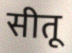
सीतू